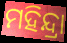
ମହିନ୍ଦ୍ରା